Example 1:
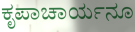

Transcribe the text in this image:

ಕೃಪಾಚಾರ್ಯನೂ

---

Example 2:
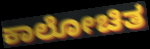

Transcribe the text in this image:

ಕಾಲೋಚಿತ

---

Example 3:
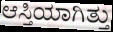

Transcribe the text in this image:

ಆಸ್ತಿಯಾಗಿತ್ತು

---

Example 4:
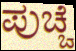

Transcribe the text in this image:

ಪುಚ್ಚೆ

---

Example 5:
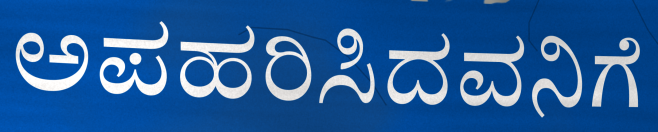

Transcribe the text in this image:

ಅಪಹರಿಸಿದವನಿಗೆ